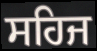
ਸਹਿਜ